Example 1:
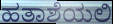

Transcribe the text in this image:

ಹತಾಶೆಯಲಿ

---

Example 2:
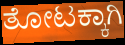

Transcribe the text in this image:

ತೋಟಕ್ಕಾಗಿ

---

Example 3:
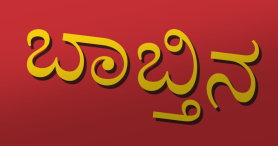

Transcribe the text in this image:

ಬಾಬ್ತಿನ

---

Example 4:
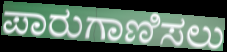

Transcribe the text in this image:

ಪಾರುಗಾಣಿಸಲು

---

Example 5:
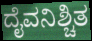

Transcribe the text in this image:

ದೈವನಿಶ್ಚಿತ